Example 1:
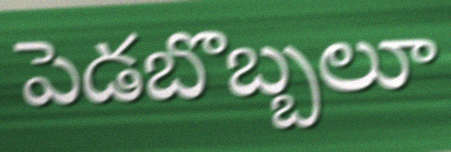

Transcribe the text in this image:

పెడబొబ్బలూ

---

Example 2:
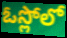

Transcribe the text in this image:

ఓస్లోలో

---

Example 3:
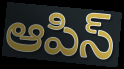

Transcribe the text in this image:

ఆపిస్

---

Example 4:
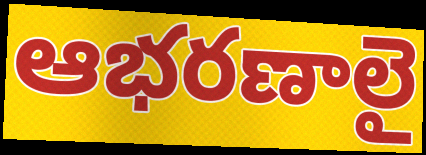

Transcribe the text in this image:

ఆభరణాలై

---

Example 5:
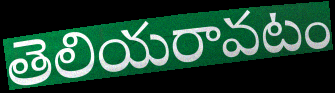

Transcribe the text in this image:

తెలియరావటం